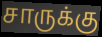
சாருக்கு